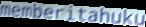
memberitahuku